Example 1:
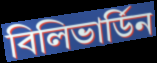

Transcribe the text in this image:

বিলিভার্ডিন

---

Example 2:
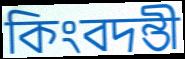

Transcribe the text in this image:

কিংবদন্তী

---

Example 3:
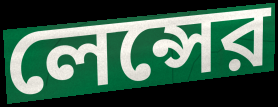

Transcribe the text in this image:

লেন্সের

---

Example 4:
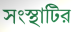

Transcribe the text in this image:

সংস্থাটির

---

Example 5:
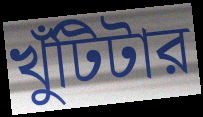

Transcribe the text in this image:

খুঁটিটার